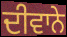
ਦੀਵਾਨੇ